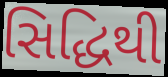
સિદ્ધિથી